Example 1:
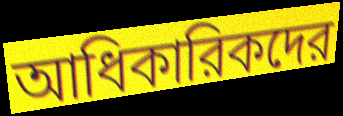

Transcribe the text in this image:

আধিকারিকদের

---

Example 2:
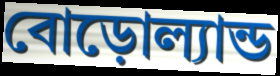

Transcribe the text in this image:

বোড়োল্যান্ড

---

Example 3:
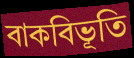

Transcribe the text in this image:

বাকবিভূতি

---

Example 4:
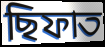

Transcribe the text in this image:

ছিফাত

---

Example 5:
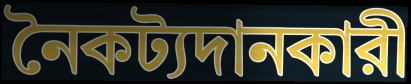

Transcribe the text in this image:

নৈকট্যদানকারী